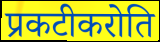
प्रकटीकरोति